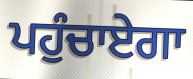
ਪਹੁੰਚਾਏਗਾ